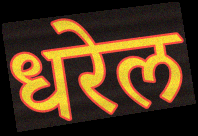
धरेल